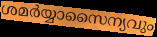
ശമർയ്യാസൈന്യവും